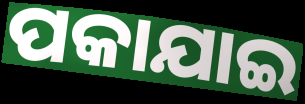
ପକାଯାଇ